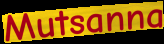
Mutsanna